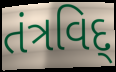
તંત્રવિદ્